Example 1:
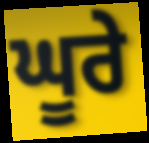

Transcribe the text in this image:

ਘੂਰੇ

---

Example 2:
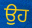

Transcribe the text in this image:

ਉੁਹ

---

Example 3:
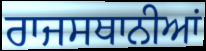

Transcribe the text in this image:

ਰਾਜਸਥਾਨੀਆਂ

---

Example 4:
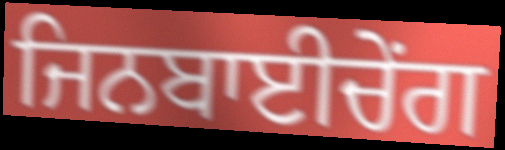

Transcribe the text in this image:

ਜਿਨਬਾਈਚੇਂਗ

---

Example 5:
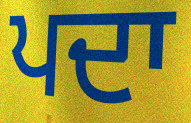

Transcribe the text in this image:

ਪਦਾ